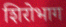
शिरोभाग